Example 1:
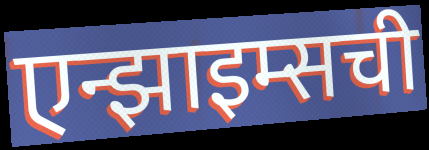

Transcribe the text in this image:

एन्झाइम्सची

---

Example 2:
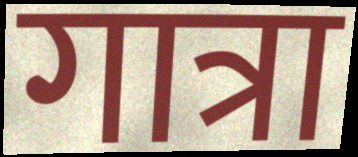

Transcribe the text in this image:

गात्रा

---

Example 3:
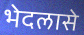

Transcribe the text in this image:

भेदलासे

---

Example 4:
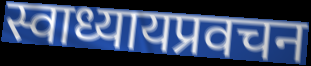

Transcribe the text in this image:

स्वाध्यायप्रवचन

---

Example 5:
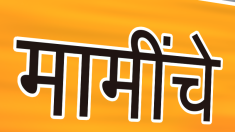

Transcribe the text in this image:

मामींचे